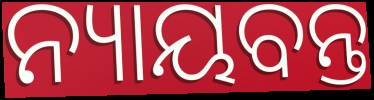
ନ୍ୟାୟବନ୍ତ